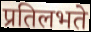
प्रतिलभते